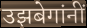
उझबेगांनीं